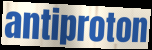
antiproton